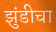
झुंडीचा